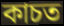
কাচত